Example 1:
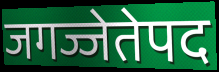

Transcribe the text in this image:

जगज्जेतेपद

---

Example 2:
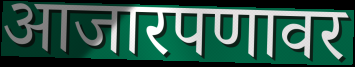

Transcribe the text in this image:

आजारपणावर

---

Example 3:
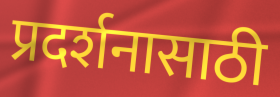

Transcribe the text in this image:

प्रदर्शनासाठी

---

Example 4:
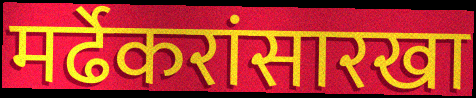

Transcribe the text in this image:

मर्ढेकरांसारखा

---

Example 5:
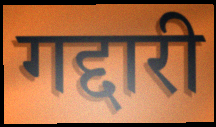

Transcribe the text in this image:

गद्दारी